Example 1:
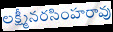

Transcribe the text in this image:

లక్ష్మీనరసింహరావు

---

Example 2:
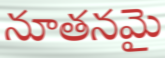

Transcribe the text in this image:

నూతనమై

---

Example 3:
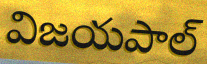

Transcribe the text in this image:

విజయపాల్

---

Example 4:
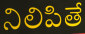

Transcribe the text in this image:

నిలిపితే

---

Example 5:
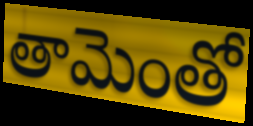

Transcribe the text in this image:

తామెంతో